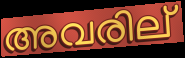
അവരില്